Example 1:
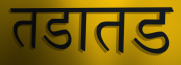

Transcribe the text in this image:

तडातड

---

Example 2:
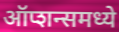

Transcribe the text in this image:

ऑप्शन्समध्ये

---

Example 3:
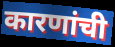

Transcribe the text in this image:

कारणांची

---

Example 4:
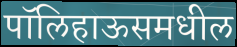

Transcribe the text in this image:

पॉलिहाऊसमधील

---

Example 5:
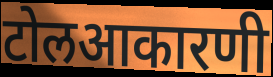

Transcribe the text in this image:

टोलआकारणी